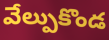
వేల్పుకొండ